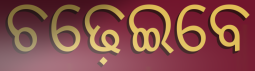
ଚଢ଼େଇବେ